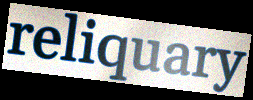
reliquary